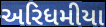
અરિધમીયા